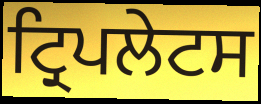
ਟ੍ਰਿਪਲੇਟਸ